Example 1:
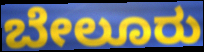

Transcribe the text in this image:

ಬೇಲೂರು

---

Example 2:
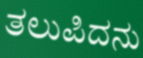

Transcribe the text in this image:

ತಲುಪಿದನು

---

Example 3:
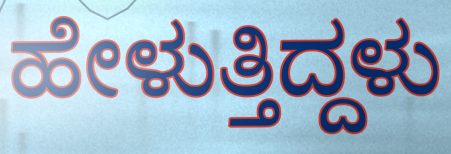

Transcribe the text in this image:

ಹೇಳುತ್ತಿದ್ದಳು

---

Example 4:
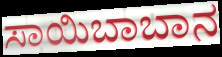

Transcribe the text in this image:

ಸಾಯಿಬಾಬಾನ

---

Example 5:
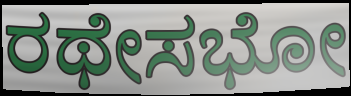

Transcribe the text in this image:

ರಥೇಸಭೋ